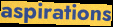
aspirations